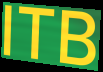
ITB